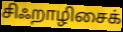
சிஃறாழிசைக்